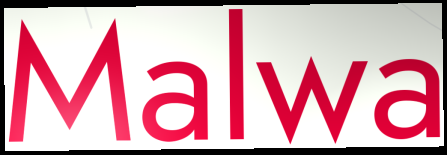
Malwa